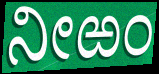
ನೀಱಂ